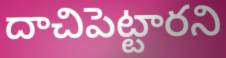
దాచిపెట్టారని